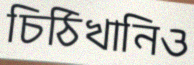
চিঠিখানিও